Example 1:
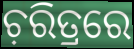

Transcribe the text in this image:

ଚ଼ରିତ୍ରରେ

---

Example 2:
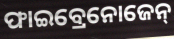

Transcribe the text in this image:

ଫାଇବ୍ରେନୋଜେନ୍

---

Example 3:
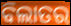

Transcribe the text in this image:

ବିଲାତର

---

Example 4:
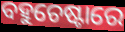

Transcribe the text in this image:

ବହୁଚେଷ୍ଟାରେ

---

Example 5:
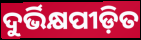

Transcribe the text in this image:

ଦୁର୍ଭିକ୍ଷପୀଡ଼ିତ